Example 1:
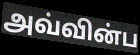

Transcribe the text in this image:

அவ்வின்ப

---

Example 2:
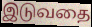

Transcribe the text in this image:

இடுவதை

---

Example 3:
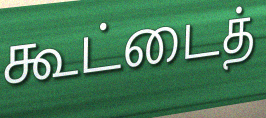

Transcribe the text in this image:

கூட்டைத்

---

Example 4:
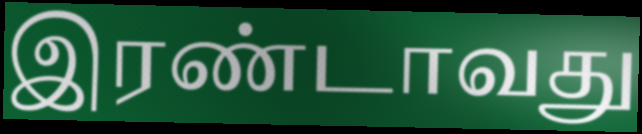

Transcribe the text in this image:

இரண்டாவது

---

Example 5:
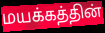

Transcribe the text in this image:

மயக்கத்தின்